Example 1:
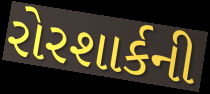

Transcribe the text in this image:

રોરશાર્કની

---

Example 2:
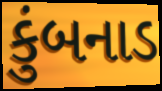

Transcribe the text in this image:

કુંબનાડ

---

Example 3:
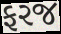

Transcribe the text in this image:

ફરજ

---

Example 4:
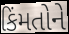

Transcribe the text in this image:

કિંમતોને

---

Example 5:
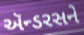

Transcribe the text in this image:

ઍન્ડરસને